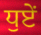
ਧੁਏਂ